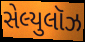
સેલ્યુલૉઝ